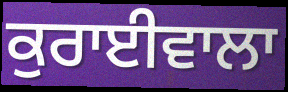
ਕੁਰਾਈਵਾਲਾ